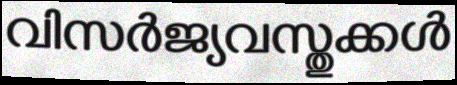
വിസർജ്യവസ്തുക്കൾ